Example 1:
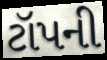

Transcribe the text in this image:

ટૉપની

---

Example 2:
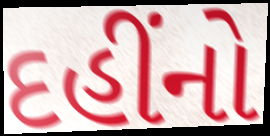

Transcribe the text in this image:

દહીંનો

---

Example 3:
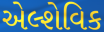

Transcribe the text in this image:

એલ્શેવિક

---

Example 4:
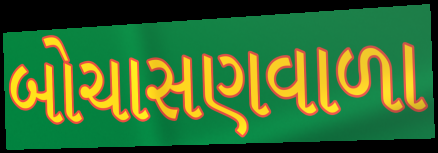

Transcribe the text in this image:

બોચાસણવાળા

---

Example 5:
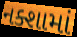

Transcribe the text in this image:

નક્શામાં